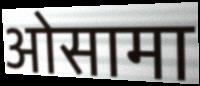
ओसामा